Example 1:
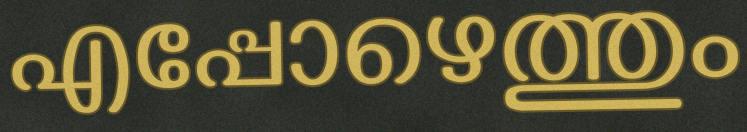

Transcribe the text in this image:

എപ്പോഴെത്തും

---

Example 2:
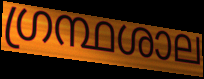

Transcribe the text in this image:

ഗ്രന്ഥശാല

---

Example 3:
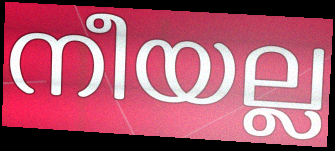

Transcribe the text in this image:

നീയല്ല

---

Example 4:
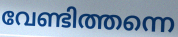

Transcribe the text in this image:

വേണ്ടിത്തന്നെ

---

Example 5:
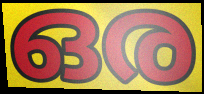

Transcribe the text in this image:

ഒര